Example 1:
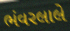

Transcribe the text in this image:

ભંવરલાલે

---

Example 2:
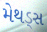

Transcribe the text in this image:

મેથડ્સ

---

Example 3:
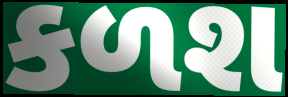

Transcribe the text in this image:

કળશ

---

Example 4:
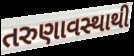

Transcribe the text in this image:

તરુણાવસ્થાથી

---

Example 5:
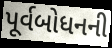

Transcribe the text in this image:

પૂર્વબોધનની